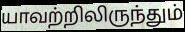
யாவற்றிலிருந்தும்